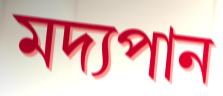
মদ্যপান